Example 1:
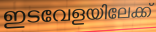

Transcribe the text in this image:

ഇടവേളയിലേക്ക്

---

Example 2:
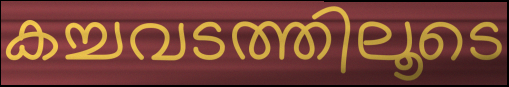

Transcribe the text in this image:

കച്ചവടത്തിലൂടെ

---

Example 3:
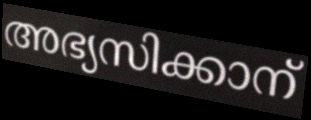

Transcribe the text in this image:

അഭ്യസിക്കാന്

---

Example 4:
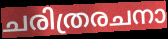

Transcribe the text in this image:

ചരിത്രരചനാ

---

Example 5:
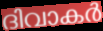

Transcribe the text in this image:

ദിവാകർ